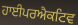
ਹਾਈਪਰਐਕਟਿਵ